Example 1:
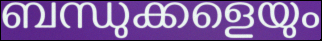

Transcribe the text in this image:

ബന്ധുക്കളെയും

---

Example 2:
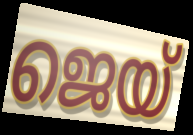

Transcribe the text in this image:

ജെയ്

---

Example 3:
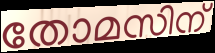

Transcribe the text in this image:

തോമസിന്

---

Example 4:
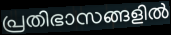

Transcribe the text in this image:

പ്രതിഭാസങ്ങളിൽ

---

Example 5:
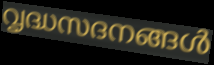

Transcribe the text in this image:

വൃദ്ധസദനങ്ങൾ